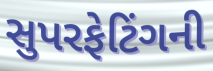
સુપરફેટિંગની